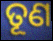
ତୂଣ